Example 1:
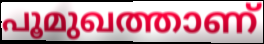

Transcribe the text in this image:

പൂമുഖത്താണ്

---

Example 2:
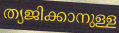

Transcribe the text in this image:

ത്യജിക്കാനുള്ള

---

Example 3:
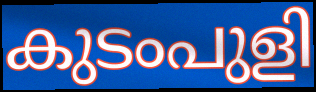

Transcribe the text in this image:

കുടംപുളി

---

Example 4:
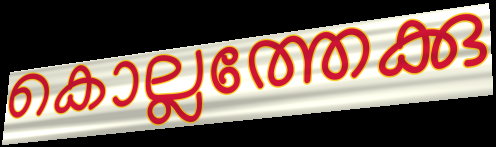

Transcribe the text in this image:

കൊല്ലത്തേക്കു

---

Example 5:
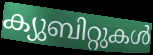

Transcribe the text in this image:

ക്യുബിറ്റുകൾ